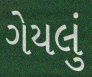
ગેયલું